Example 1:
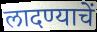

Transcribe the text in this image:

लादण्याचें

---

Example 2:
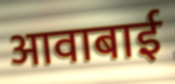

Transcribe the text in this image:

आवाबाई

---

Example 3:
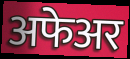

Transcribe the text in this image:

अफेअर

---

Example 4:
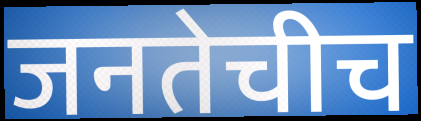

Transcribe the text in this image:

जनतेचीच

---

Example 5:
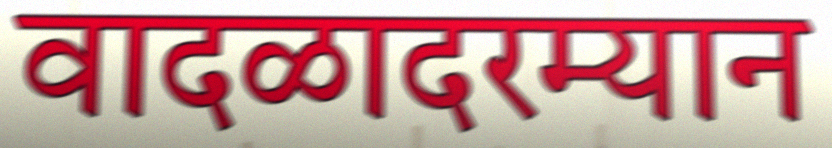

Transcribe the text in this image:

वादळादरम्यान